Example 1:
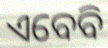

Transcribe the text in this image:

ଏବେବି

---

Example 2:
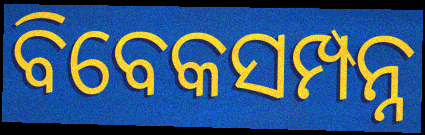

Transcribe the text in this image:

ବିବେକସମ୍ପନ୍ନ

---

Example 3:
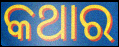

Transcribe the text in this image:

କଥାର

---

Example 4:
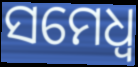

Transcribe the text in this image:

ସମେଧ୍ୱ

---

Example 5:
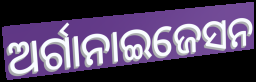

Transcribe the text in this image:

ଅର୍ଗାନାଇଜେସନ